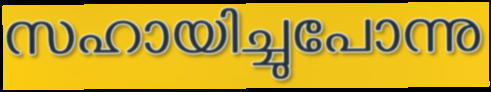
സഹായിച്ചുപോന്നു